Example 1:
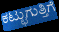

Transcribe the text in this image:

ಕಟ್ಟುಗುತ್ತಿಗೆ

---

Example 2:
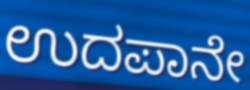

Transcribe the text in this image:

ಉದಪಾನೇ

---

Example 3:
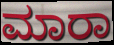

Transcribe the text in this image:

ಮಾರಾ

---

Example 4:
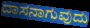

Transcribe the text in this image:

ದಾಸನಾಗುವುದು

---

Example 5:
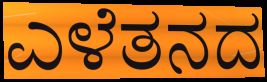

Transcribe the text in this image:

ಎಳೆತನದ